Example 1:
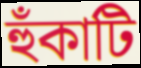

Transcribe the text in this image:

হুঁকাটি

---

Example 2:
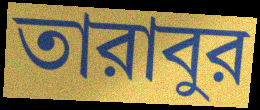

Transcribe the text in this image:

তারাবুর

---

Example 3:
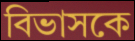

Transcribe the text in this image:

বিভাসকে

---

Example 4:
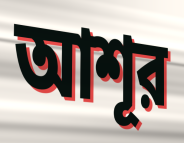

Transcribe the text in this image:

আশূর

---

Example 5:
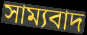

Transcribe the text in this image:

সাম্যবাদ